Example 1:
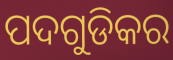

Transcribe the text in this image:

ପଦଗୁଡିକର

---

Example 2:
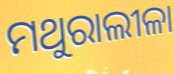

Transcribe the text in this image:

ମଥୁରାଲୀଳା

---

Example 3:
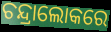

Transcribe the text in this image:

ଚନ୍ଦ୍ରାଲୋକରେ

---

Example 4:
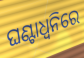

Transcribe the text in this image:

ଘଣ୍ଟାଧ୍ୱନିରେ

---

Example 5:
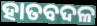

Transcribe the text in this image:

ହାତବଦଳ